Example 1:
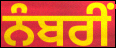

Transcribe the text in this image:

ਨੰਬਰੀਂ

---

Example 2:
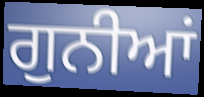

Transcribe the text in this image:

ਗੁਨੀਆਂ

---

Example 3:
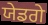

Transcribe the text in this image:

ਯੇਡਗੇ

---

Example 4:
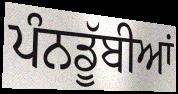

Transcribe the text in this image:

ਪੰਨਡੂੱਬੀਆਂ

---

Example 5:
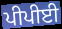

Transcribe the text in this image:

ਪੀਪੀਈ